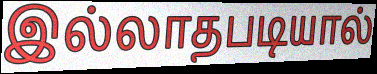
இல்லாதபடியால்